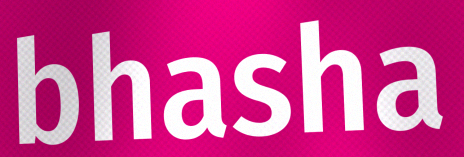
bhasha